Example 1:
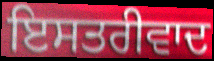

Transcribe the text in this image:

ਇਸਤਰੀਵਾਦ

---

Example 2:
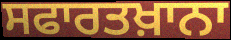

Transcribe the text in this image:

ਸਫਾਰਤਖ਼ਾਨਾ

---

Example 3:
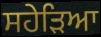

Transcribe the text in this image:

ਸਹੇੜਿਆ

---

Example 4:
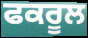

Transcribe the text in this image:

ਫਕਰੂਲ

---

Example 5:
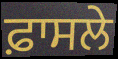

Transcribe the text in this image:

ਫ਼ਾਸਲੇ